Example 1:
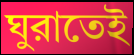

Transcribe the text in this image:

ঘুরাতেই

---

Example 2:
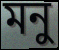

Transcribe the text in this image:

মনু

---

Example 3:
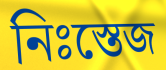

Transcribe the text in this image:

নিঃস্তেজ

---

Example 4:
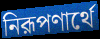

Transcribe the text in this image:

নিরূপণার্থে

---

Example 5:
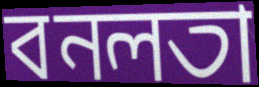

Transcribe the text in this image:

বনলতা